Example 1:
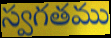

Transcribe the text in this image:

స్వగతము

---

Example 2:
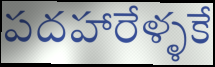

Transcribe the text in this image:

పదహారేళ్ళకే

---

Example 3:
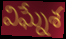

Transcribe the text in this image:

విఘ్నేశ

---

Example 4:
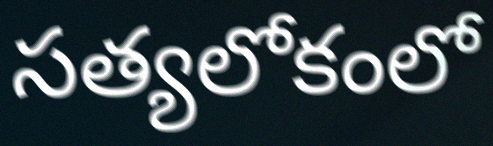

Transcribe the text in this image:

సత్యలోకంలో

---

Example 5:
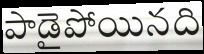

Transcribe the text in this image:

పాడైపోయినది